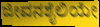
ಜೀವನಶೈಲಿಯೇ